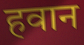
हवान